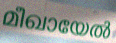
മീഖായേൽ